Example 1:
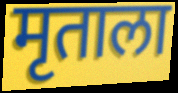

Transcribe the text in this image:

मृताला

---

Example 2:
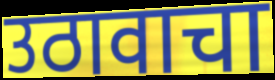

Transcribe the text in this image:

उठावाचा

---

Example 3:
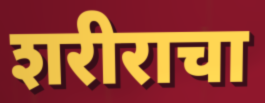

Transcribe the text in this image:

शरीराचा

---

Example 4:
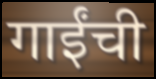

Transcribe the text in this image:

गाईंची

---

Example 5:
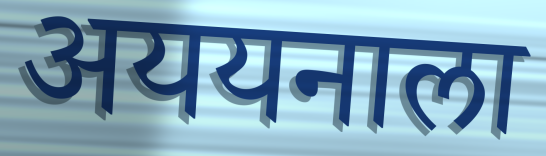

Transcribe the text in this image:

अययनाला